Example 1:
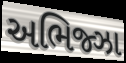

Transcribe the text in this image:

અભિજ્ઝા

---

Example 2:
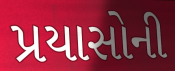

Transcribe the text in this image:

પ્રયાસોની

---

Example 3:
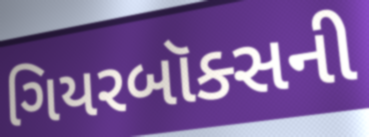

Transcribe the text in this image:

ગિયરબૉક્સની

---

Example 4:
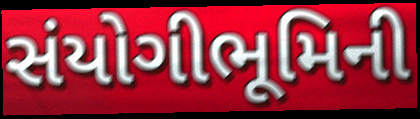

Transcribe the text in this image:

સંયોગીભૂમિની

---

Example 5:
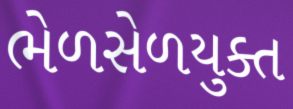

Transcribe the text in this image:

ભેળસેળયુક્ત